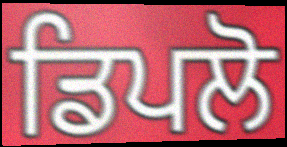
ਡਿਪਲੋ